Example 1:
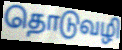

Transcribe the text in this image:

தொடுவழி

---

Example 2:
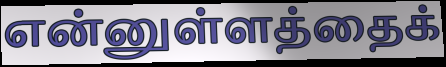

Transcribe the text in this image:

என்னுள்ளத்தைக்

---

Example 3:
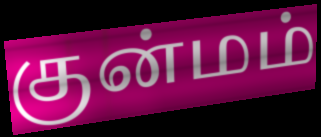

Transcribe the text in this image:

குன்மம்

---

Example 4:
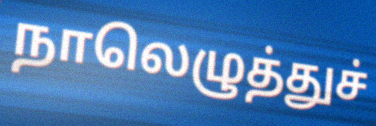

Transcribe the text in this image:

நாலெழுத்துச்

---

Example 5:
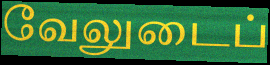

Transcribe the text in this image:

வேலுடைப்